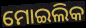
ମୋଇଲିକ